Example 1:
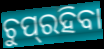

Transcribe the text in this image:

ଚୁପ୍‌ରହିବା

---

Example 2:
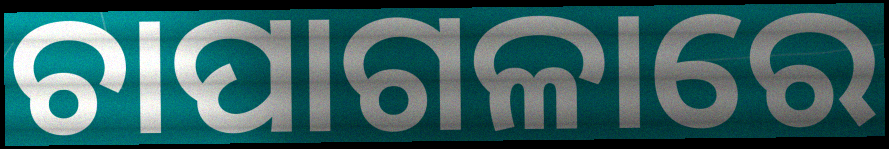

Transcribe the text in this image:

ଚାପାଗଳାରେ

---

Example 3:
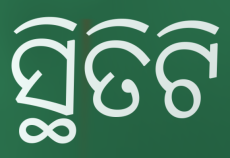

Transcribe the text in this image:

ସ୍ଥିତିଟି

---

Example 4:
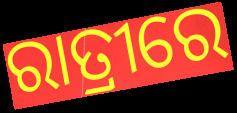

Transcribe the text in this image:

ରାତ୍ରୀରେ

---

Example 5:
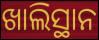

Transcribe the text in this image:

ଖାଲିସ୍ଥାନ